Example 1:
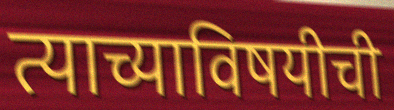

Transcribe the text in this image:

त्याच्याविषयीची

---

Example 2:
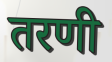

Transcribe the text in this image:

तरणी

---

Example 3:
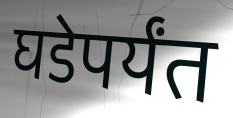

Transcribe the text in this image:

घडेपर्यंत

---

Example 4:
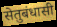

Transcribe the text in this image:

सेतुबंधासी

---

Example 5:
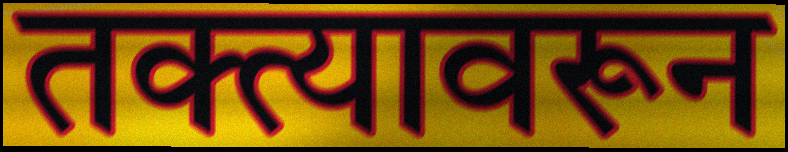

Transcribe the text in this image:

तक्त्यावरून